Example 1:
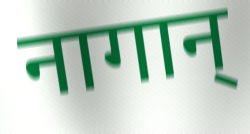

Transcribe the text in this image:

नागान्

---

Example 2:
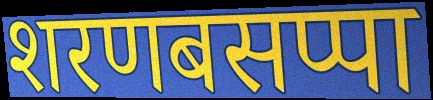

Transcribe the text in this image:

शरणबसप्पा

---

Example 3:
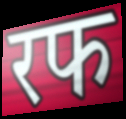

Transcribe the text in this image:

रफ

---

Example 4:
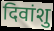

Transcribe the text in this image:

दिवांशु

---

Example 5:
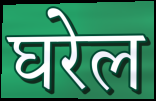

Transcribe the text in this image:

घरेल